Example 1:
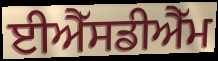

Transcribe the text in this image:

ਈਐੱਸਡੀਐੱਮ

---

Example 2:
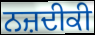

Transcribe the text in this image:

ਨਜ਼ਦੀਕੀ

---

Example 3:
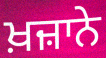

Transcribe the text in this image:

ਖ਼ਜ਼ਾਨੇ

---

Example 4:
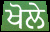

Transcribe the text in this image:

ਖੋਲੇ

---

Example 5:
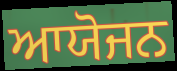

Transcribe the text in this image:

ਆਯੋਜਨ